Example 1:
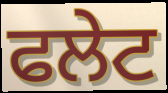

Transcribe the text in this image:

ਫਲੇਟ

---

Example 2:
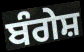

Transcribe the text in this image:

ਬੰਗੇਸ਼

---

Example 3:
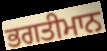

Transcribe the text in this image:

ਭਗਤੀਮਾਨ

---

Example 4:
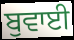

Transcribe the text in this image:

ਬੁਵਾਈ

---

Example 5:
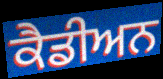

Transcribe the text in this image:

ਕੈਡੀਅਨ